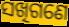
ସଖିଗଣେ